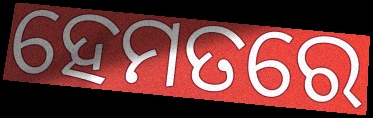
ହେମତରେ